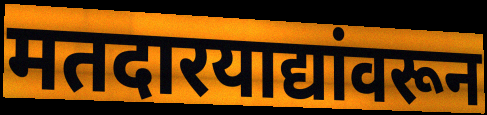
मतदारयाद्यांवरून